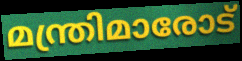
മന്ത്രിമാരോട്